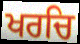
ਖਰਚਿ